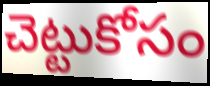
చెట్టుకోసం